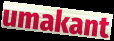
umakant